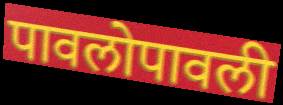
पावलोपावली